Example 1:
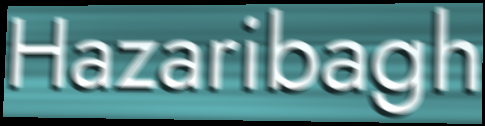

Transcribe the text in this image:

Hazaribagh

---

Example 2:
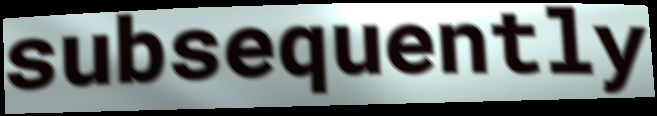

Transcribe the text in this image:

subsequently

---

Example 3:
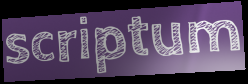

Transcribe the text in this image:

scriptum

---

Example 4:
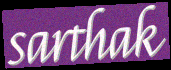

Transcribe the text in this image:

sarthak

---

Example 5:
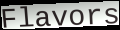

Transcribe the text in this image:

Flavors